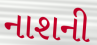
નાશની